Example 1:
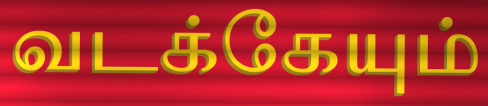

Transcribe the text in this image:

வடக்கேயும்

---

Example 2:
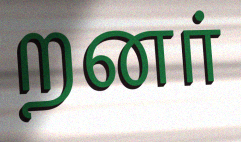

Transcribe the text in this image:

றனர்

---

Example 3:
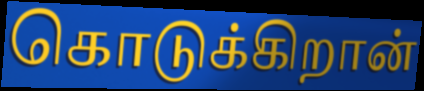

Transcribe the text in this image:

கொடுக்கிறான்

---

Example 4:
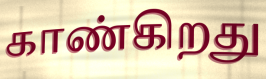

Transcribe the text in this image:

காண்கிறது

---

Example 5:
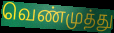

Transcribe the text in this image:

வெண்முத்து